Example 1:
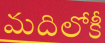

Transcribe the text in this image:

మదిలోకీ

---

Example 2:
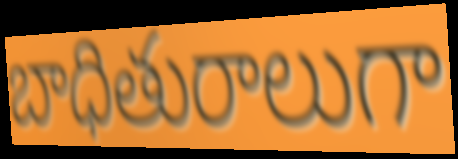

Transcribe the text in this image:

బాధితురాలుగా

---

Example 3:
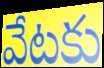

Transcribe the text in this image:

వేటకు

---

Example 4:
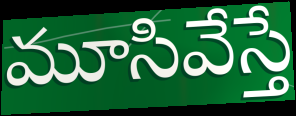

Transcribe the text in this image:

మూసివేస్తే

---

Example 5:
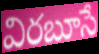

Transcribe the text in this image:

విరబూసే